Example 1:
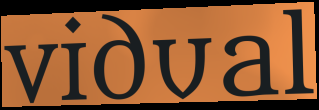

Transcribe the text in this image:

vidual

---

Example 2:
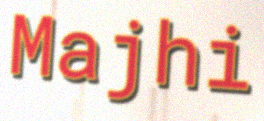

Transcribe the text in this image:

Majhi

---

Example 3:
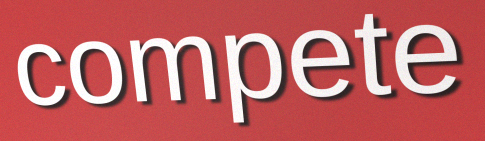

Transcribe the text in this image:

compete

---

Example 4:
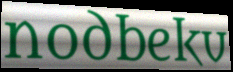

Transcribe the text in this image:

nodbeku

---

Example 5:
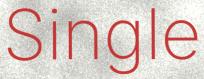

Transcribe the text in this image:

Single